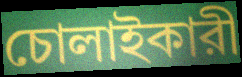
চোলাইকারী